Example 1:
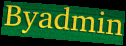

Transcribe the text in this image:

Byadmin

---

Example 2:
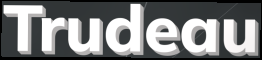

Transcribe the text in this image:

Trudeau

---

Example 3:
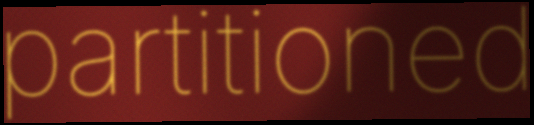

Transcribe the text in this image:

partitioned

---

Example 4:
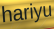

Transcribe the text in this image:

hariyu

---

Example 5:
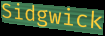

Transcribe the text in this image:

Sidgwick